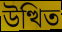
উত্থিত